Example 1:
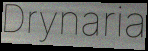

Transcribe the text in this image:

Drynaria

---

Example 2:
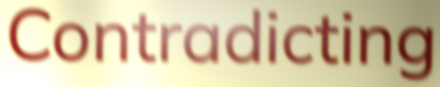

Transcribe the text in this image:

Contradicting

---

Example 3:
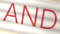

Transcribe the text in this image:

AND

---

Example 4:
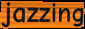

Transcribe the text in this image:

jazzing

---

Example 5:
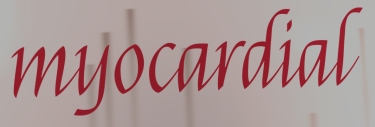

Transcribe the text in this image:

myocardial